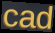
cad